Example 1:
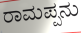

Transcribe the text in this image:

ರಾಮಪ್ಪನು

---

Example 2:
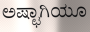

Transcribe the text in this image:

ಅಷ್ಟಾಗಿಯೂ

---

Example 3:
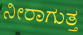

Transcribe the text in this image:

ನೀರಾಗುತ್ತ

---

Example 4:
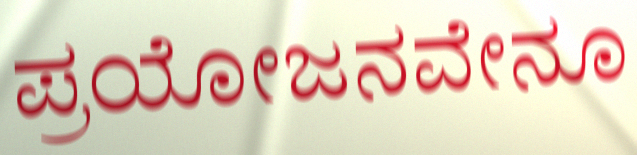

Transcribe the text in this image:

ಪ್ರಯೋಜನವೇನೂ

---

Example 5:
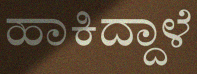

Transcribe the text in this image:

ಹಾಕಿದ್ದಾಳೆ